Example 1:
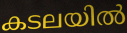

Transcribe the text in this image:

കടലയിൽ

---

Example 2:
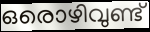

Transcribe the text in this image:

ഒരൊഴിവുണ്ട്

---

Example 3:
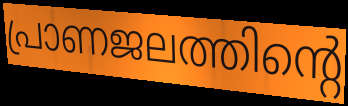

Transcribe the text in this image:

പ്രാണജലത്തിന്റെ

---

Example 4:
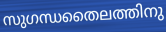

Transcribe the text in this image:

സുഗന്ധതൈലത്തിനു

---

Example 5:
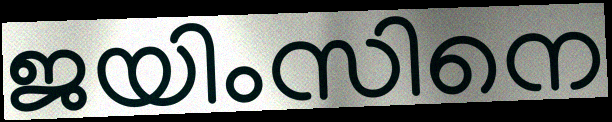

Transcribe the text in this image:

ജയിംസിനെ